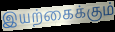
இயற்கைக்கும்